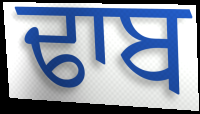
ਢਾਬ